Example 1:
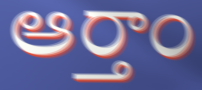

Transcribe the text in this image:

ఆర్తాం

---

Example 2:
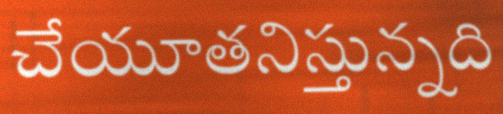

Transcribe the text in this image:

చేయూతనిస్తున్నది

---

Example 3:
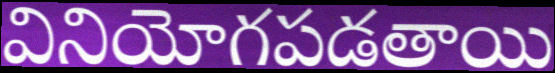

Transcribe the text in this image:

వినియోగపడతాయి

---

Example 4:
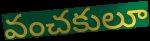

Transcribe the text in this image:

వంచకులూ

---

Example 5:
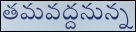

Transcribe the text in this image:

తమవద్దనున్న